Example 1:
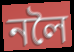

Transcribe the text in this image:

নলৈ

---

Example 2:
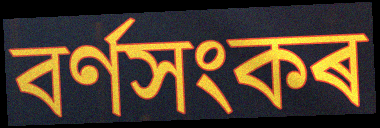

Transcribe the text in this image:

বৰ্ণসংকৰ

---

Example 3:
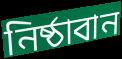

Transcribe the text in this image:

নিষ্ঠাবান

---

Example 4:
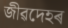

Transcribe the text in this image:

জীৱদেহৰ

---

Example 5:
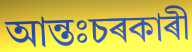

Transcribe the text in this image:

আন্তঃচৰকাৰী